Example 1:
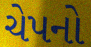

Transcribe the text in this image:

ચેપનો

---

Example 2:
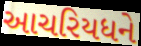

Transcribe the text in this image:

આચરિયધને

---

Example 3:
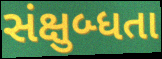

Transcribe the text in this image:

સંક્ષુબ્ધતા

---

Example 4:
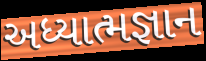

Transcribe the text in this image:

અધ્યાત્મજ્ઞાન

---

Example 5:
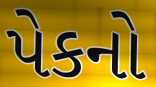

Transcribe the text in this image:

પેકનો